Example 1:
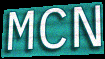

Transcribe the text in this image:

MCN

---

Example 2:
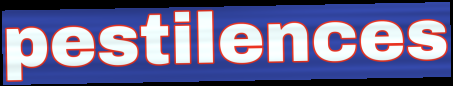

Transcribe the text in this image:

pestilences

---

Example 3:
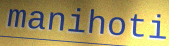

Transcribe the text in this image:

manihoti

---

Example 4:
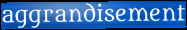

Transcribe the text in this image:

aggrandisement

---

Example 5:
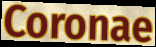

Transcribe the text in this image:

Coronae